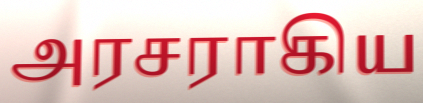
அரசராகிய